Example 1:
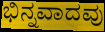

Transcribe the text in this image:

ಭಿನ್ನವಾದವು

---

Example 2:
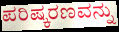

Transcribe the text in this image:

ಪರಿಷ್ಕರಣವನ್ನು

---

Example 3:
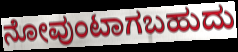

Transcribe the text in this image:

ನೋವುಂಟಾಗಬಹುದು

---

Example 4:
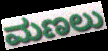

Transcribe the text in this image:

ಮಣಲು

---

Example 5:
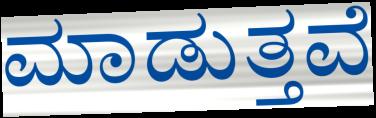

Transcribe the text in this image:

ಮಾಡುತ್ತವೆ